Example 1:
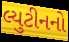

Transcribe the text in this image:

લ્યુટીનનો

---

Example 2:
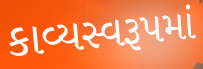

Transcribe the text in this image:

કાવ્યસ્વરૂપમાં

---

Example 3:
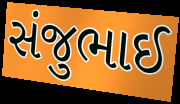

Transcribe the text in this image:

સંજુભાઈ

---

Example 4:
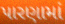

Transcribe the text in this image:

પારણામાં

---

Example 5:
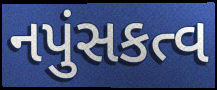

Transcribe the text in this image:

નપુંસકત્વ